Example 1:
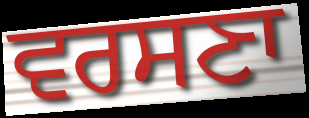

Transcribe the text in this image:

ਵਰਸਣਾ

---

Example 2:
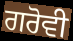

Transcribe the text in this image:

ਗਰੋਵੀ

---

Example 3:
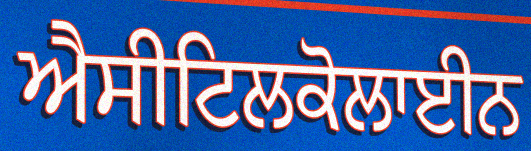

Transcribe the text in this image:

ਐਸੀਟਿਲਕੋਲਾਈਨ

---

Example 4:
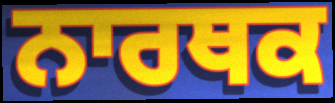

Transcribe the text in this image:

ਨਾਰਥਕ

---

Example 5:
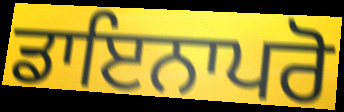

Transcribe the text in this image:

ਡਾਇਨਾਪਰੋ